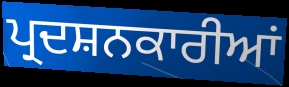
ਪ੍ਰਦਸ਼ਨਕਾਰੀਆਂ